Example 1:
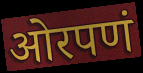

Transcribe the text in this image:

ओरपणं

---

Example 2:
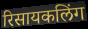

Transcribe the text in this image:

रिसायकलिंग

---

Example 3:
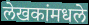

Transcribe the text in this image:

लेखकांमधले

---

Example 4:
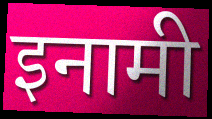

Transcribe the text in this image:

इनामी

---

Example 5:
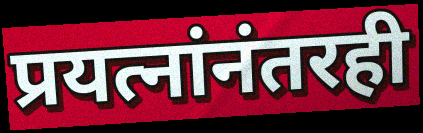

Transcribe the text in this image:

प्रयत्नांनंतरही